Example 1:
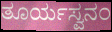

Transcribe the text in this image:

ತೂರ್ಯಸ್ವನಂ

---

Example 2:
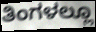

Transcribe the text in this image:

ತಿಂಗಳಲ್ಲೂ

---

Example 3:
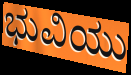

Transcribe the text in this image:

ಭುವಿಯು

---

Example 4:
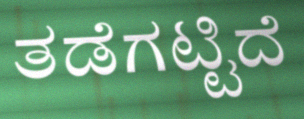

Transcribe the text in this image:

ತಡೆಗಟ್ಟಿದೆ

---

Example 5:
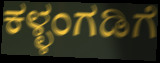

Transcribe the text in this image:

ಕಳ್ಳಂಗಡಿಗೆ